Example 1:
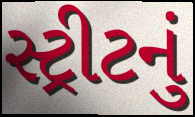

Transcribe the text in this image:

સ્ટ્રીટનું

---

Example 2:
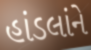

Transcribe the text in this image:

હાંડલાંને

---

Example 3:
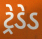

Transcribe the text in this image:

ટ્રેડેડ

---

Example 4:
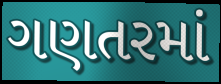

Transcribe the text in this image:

ગણતરમાં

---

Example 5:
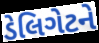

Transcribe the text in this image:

ડેલિગેટને